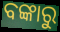
ବଙ୍କାରୁ